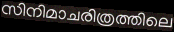
സിനിമാചരിത്രത്തിലെ